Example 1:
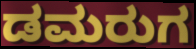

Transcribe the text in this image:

ಡಮರುಗ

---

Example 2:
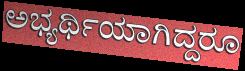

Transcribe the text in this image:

ಅಭ್ಯರ್ಥಿಯಾಗಿದ್ದರೂ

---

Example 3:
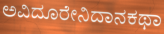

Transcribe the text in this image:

ಅವಿದೂರೇನಿದಾನಕಥಾ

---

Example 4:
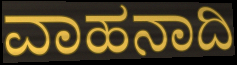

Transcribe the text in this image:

ವಾಹನಾದಿ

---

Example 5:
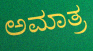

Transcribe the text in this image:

ಅಮಾತ್ರ